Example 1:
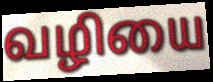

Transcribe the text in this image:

வழியை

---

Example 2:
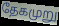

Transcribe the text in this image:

தேகமுறு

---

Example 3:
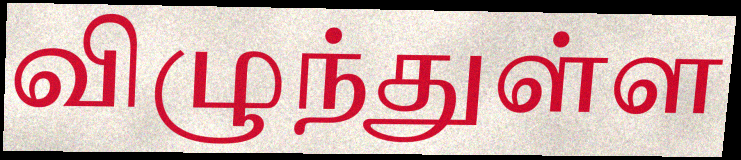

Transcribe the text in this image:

விழுந்துள்ள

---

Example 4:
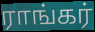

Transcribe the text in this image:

ராங்கர்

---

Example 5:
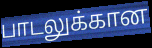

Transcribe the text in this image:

பாடலுக்கான